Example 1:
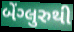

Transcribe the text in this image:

બેંગ્લુરુથી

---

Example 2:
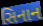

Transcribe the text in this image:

સિનાન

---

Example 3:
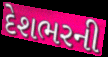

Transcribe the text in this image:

દેશભરની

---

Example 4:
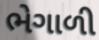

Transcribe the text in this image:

ભેગાળી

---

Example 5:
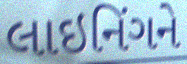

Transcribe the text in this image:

લાઇનિંગને